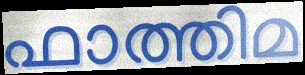
ഫാത്തിമ